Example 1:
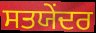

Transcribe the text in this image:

ਸਤਯੇਂਦਰ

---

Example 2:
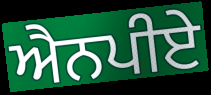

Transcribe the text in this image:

ਐਨਪੀਏ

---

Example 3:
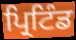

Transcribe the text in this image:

ਪ੍ਰਿਟਿੰਡ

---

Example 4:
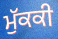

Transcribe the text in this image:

ਮੁੱਕਕੀ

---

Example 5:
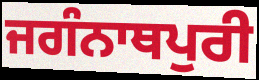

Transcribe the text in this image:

ਜਗੰਨਾਥਪੁਰੀ